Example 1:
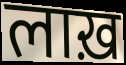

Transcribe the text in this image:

लाख़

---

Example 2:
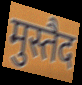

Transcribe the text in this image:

मुस्तैद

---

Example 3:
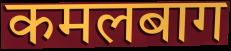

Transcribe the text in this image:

कमलबाग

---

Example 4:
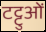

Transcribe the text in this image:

टट्टुओं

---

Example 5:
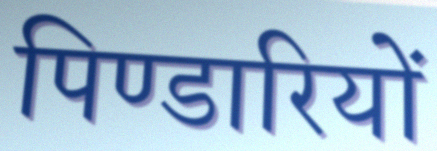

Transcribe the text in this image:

पिण्डारियों